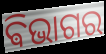
ଵିଭାଗର